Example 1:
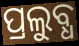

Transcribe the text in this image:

ପ୍ରଲୁବ୍ଧ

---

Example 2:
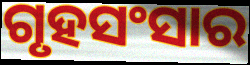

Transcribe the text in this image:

ଗୃହସଂସାର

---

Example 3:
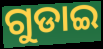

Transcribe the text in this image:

ଗୁଡାଇ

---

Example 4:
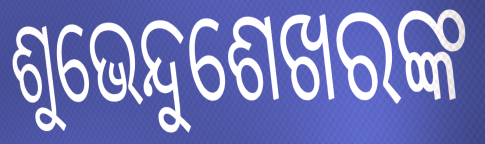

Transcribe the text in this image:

ଶୁଭେନ୍ଦୁଶେଖରଙ୍କ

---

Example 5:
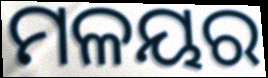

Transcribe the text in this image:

ମଳୟର